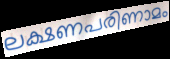
ലക്ഷണപരിണാമം